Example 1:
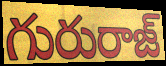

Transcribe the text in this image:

గురురాజ్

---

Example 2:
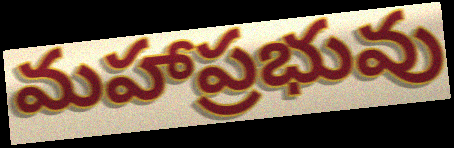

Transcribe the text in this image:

మహాప్రభువు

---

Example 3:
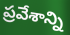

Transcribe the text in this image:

ప్రవేశాన్ని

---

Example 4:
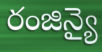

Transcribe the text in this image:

రంజిన్యై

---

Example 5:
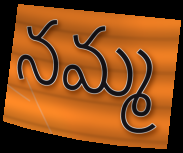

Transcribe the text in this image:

నమ్మ